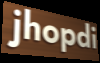
jhopdi